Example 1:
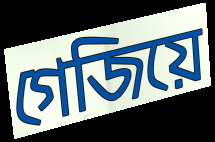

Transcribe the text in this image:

গেজিয়ে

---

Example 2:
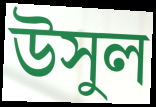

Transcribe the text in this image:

উসুল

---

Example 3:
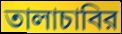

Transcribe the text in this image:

তালাচাবির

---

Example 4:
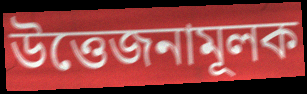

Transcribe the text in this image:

উত্তেজনামূলক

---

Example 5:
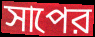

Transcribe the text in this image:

সাপের